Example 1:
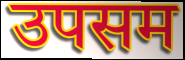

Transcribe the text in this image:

उपसम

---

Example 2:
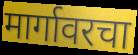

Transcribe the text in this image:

मार्गावरचा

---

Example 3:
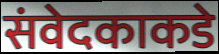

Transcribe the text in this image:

संवेदकाकडे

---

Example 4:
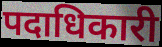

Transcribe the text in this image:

पदाधिकारी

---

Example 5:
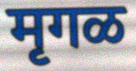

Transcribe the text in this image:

मृगळ